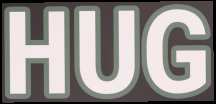
HUG